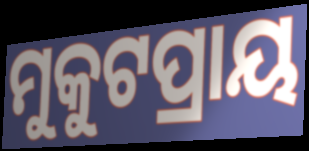
ମୁକୁଟପ୍ରାୟ